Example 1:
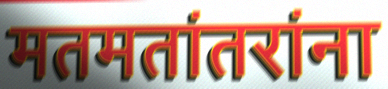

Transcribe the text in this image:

मतमतांतरांना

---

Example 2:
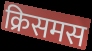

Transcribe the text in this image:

क्रिसमस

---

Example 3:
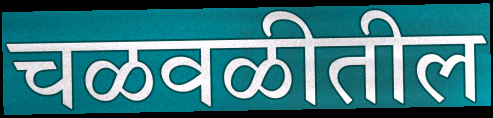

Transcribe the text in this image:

चळवळीतील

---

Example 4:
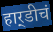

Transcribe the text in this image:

हार्डीचं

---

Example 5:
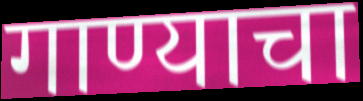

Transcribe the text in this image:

गाण्याचा